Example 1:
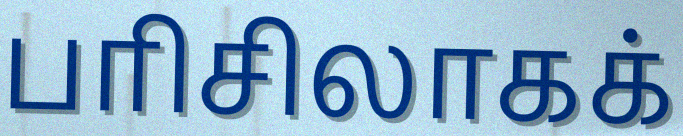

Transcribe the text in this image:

பரிசிலாகக்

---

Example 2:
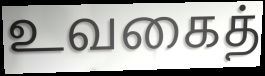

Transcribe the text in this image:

உவகைத்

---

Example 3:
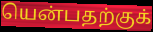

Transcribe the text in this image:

யென்பதற்குக்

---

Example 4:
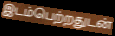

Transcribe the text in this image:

இடம்பெற்றதுடன்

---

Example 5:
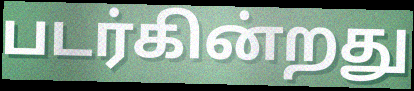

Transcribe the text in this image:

படர்கின்றது